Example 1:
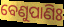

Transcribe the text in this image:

ବେଣୁପାଣିଃ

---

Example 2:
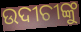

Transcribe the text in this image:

ଉଦୀଚୀଙ୍କୁ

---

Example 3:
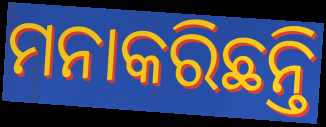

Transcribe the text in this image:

ମନାକରିଛନ୍ତି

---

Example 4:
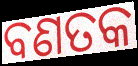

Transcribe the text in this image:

ବଣତକ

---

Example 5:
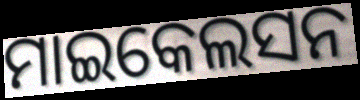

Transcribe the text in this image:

ମାଇକେଲସନ